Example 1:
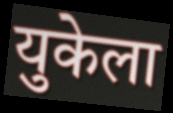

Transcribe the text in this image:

युकेला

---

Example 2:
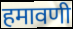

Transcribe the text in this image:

हमावणी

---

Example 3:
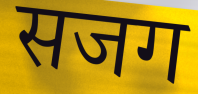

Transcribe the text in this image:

सजग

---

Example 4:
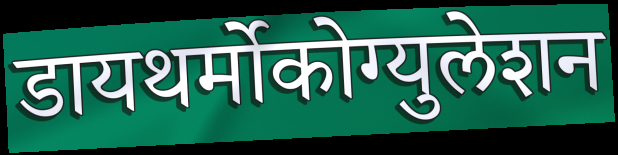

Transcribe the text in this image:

डायथर्मोकोग्युलेशन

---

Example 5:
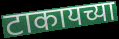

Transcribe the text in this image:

टाकायच्या